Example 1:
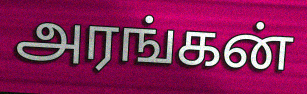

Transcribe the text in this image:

அரங்கன்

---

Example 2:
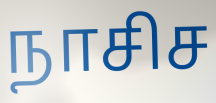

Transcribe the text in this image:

நாசிச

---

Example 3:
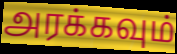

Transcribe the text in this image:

அரக்கவும்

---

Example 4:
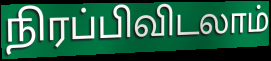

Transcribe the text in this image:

நிரப்பிவிடலாம்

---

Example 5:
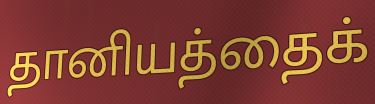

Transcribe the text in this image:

தானியத்தைக்